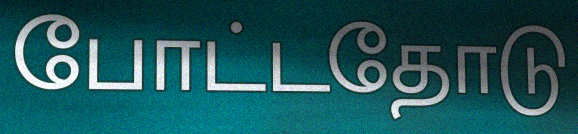
போட்டதோடு